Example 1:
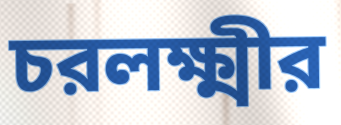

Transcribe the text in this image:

চরলক্ষ্মীর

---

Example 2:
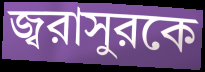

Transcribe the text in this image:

জ্বরাসুরকে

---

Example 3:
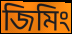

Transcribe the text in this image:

জিমিং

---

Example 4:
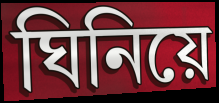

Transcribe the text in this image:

ঘিনিয়ে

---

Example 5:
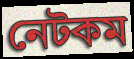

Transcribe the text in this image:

নেটকম